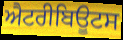
ਐਟਰੀਬਿਊਟਸ